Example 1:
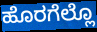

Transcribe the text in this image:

ಹೊರಗೆಲ್ಲೊ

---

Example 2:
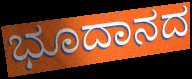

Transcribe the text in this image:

ಭೂದಾನದ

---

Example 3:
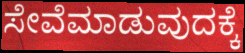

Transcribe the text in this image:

ಸೇವೆಮಾಡುವುದಕ್ಕೆ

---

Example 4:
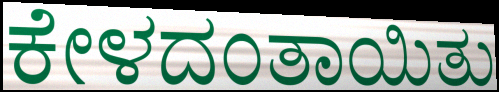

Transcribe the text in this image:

ಕೇಳದಂತಾಯಿತು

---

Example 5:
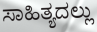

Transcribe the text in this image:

ಸಾಹಿತ್ಯದಲ್ಲು